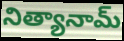
నిత్యానామ్